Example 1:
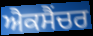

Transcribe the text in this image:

ਐਕਸੈਂਚਰ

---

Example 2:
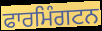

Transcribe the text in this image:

ਫਾਰਮਿੰਗਟਨ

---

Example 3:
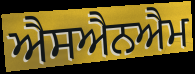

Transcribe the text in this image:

ਐਸਐਨਐਮ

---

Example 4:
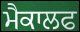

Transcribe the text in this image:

ਮੈਕਾਲਫ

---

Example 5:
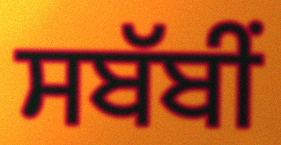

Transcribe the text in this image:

ਸਬੱਬੀਂ